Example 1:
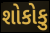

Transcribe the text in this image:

શોકોકુ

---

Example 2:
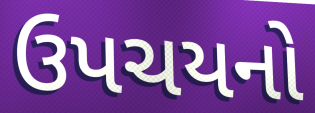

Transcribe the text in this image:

ઉપચયનો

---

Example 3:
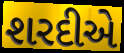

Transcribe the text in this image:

શરદીએ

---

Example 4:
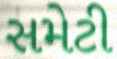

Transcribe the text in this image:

સમેટી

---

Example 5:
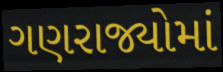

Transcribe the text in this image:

ગણરાજ્યોમાં